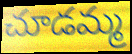
చూడమ్మ